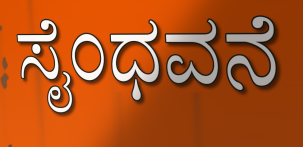
ಸೈಂಧವನೆ